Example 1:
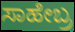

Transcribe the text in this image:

ಸಾಹೇಬ್ರ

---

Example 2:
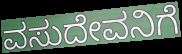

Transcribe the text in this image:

ವಸುದೇವನಿಗೆ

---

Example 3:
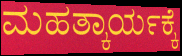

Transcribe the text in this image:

ಮಹತ್ಕಾರ್ಯಕ್ಕೆ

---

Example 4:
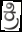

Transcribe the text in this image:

ಕ್ರಿ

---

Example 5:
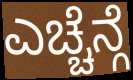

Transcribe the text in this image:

ಎಚ್ಚೆನ್ಗೆ